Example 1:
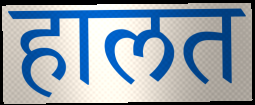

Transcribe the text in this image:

हालत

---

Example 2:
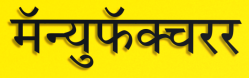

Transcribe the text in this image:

मॅन्युफॅक्चरर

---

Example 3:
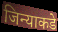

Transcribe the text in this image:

जिन्याकडे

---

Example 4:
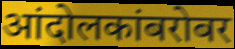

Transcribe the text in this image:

आंदोलकांबरोबर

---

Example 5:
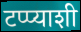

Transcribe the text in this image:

टप्प्याशी